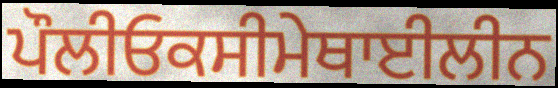
ਪੌਲੀਓਕਸੀਮੇਥਾਈਲੀਨ